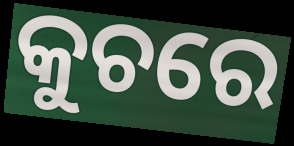
କୁଚରେ